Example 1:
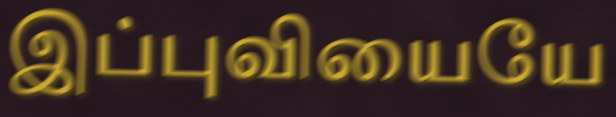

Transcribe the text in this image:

இப்புவியையே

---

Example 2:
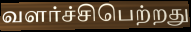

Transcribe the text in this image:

வளர்ச்சிபெற்றது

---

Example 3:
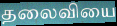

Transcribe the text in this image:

தலைவியை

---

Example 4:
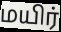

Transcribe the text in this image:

மயிர்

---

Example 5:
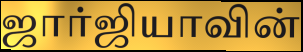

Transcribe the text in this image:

ஜார்ஜியாவின்